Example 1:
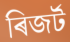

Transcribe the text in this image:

ৰিজৰ্ট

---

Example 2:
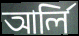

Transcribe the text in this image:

আৰ্লি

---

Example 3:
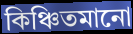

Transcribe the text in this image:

কিঞ্চিতমানো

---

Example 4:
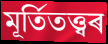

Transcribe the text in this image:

মূৰ্তিতত্ত্বৰ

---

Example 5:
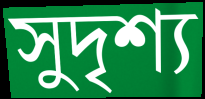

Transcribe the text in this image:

সুদৃশ্য